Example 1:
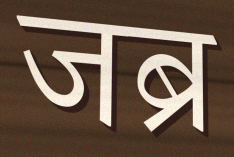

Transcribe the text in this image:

जब्र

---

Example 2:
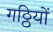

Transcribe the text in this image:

गठ्ठियों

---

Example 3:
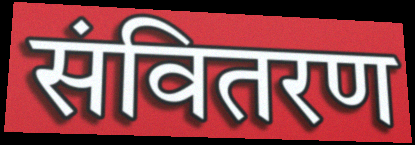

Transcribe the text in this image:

संवितरण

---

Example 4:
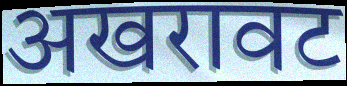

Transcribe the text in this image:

अखरावट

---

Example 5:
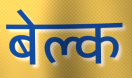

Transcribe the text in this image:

बेल्क